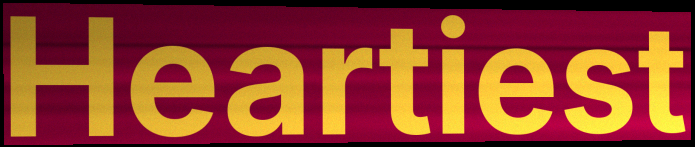
Heartiest